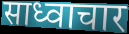
साध्वाचार